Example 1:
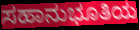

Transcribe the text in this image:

ಸಹಾನುಭೂತಿಯ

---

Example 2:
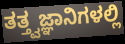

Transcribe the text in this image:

ತತ್ತ್ವಜ್ಞಾನಿಗಳಲ್ಲಿ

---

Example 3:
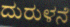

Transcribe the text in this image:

ದುರುಳನೆ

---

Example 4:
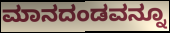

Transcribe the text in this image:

ಮಾನದಂಡವನ್ನೂ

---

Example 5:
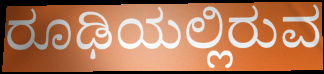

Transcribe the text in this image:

ರೂಢಿಯಲ್ಲಿರುವ